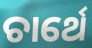
ଚାର୍ଥେ